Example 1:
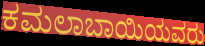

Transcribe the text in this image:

ಕಮಲಾಬಾಯಿಯವರು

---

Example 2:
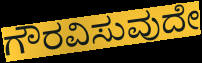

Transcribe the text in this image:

ಗೌರವಿಸುವುದೇ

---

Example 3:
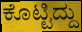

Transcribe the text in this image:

ಕೊಟ್ಟಿದ್ದು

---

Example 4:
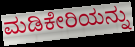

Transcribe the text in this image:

ಮಡಿಕೇರಿಯನ್ನು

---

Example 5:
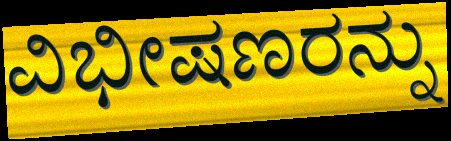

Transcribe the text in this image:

ವಿಭೀಷಣರನ್ನು